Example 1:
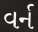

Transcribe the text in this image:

વર્ન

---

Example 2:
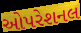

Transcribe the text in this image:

ઓપરેશનલ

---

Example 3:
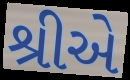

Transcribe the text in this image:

શ્રીએ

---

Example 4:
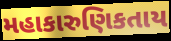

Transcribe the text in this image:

મહાકારુણિકતાય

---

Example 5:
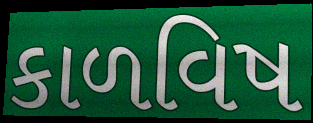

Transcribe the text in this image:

કાળવિષ